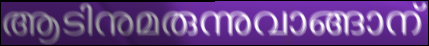
ആടിനുമരുന്നുവാങ്ങാന്